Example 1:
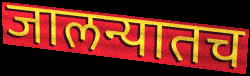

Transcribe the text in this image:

जालन्यातच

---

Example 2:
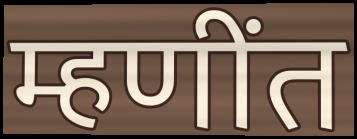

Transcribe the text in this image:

म्हणींत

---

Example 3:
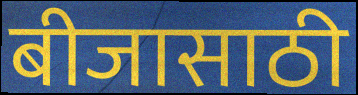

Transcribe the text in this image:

बीजासाठी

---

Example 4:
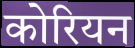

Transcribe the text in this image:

कोरियन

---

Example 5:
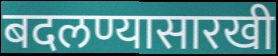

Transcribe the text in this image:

बदलण्यासारखी